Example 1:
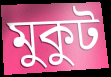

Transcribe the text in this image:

মুকুট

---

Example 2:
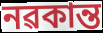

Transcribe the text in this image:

নৱকান্ত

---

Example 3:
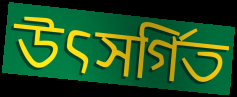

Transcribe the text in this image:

উৎসৰ্গিত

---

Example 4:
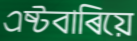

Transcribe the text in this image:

এষ্টবাৰিয়ে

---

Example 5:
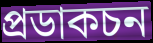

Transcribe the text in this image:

প্ৰডাকচন